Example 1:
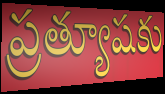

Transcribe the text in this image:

ప్రత్యూషకు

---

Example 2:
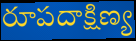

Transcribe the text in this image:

రూపదాక్షిణ్య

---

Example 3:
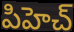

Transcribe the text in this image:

పిహెచ్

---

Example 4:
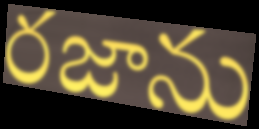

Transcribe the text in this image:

రజాను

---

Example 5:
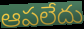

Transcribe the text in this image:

ఆపలేదు